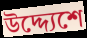
উদ্দ্যেশে